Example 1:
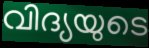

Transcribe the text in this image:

വിദ്യയുടെ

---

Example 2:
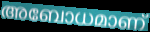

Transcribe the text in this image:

അബോധമാണ്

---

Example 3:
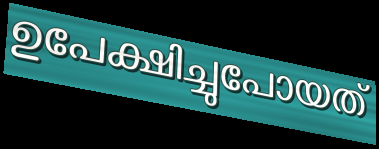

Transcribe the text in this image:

ഉപേക്ഷിച്ചുപോയത്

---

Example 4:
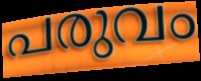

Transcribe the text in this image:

പരുവം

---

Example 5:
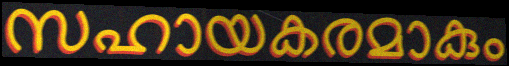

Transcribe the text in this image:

സഹായകരമാകും